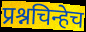
प्रश्नचिन्हेच